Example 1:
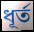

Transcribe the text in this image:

ধূৰ্ত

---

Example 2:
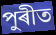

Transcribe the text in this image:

পুৰীত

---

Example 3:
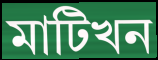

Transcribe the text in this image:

মাটিখন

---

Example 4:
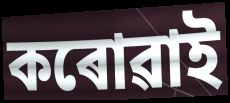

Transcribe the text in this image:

কৰোৱাই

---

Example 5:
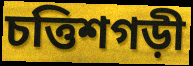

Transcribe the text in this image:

চত্তিশগড়ী